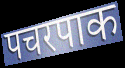
पचरपाक